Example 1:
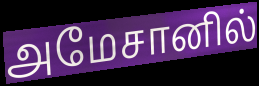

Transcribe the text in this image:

அமேசானில்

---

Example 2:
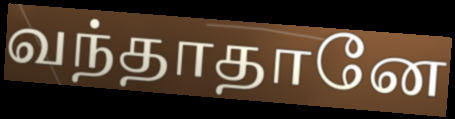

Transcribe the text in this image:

வந்தாதானே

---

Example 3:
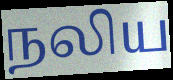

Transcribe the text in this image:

நலிய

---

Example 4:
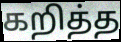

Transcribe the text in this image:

கறித்த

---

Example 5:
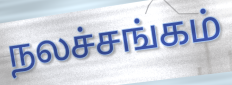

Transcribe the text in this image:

நலச்சங்கம்